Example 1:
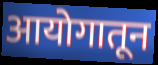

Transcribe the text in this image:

आयोगातून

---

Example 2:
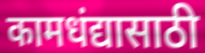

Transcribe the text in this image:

कामधंद्यासाठी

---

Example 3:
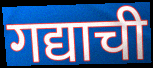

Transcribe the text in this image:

गद्याची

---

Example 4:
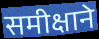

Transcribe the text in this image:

समीक्षाने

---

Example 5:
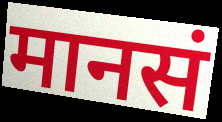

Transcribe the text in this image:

मानसं